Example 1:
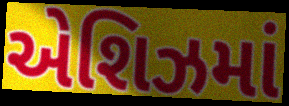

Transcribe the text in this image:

એશિઝમાં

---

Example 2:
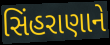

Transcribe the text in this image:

સિંહરાણાને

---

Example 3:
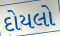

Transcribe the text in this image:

દોયલો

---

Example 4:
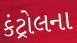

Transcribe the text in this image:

કંટ્રોલના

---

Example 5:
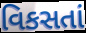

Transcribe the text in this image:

વિકસતાં